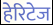
हेरिटेज